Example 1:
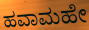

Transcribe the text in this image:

ಹವಾಮಹೇ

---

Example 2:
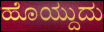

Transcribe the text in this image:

ಹೊಯ್ದುದು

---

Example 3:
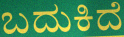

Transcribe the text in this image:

ಬದುಕಿದೆ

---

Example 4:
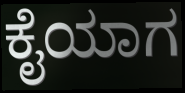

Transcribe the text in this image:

ಕೈಯಾಗ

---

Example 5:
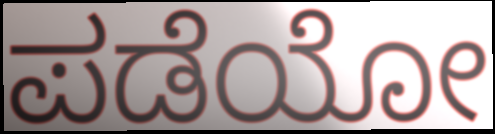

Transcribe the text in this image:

ಪಡೆಯೋ